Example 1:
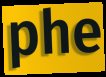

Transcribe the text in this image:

phe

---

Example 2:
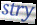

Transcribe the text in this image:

stry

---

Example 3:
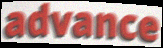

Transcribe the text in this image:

advance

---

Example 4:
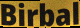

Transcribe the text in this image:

Birbal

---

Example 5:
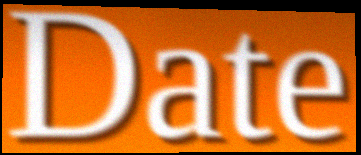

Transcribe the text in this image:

Date